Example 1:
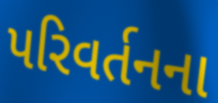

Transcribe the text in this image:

પરિવર્તનના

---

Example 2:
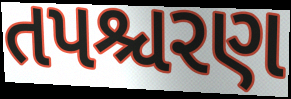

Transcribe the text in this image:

તપશ્ચરણ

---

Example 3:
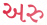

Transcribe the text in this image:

અરુ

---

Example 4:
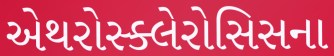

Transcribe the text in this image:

એથરોસ્ક્લેરોસિસના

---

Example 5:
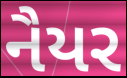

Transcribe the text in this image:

નૈયર